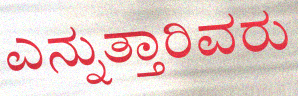
ಎನ್ನುತ್ತಾರಿವರು